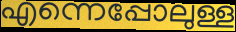
എന്നെപ്പോലുള്ള